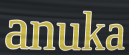
anuka